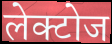
लेक्टोज